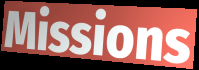
Missions